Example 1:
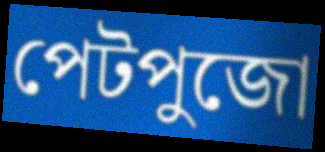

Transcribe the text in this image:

পেটপুজো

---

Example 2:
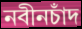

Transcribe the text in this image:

নবীনচাঁদ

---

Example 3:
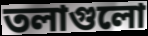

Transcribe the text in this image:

তলাগুলো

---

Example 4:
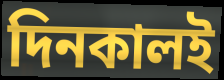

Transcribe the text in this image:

দিনকালই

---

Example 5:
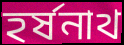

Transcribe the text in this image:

হর্ষনাথ